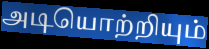
அடியொற்றியும்